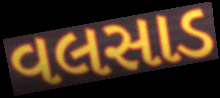
વલસાડ